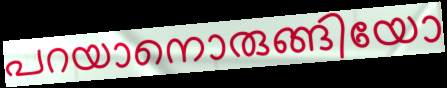
പറയാനൊരുങ്ങിയോ